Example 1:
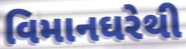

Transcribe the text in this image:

વિમાનઘરેથી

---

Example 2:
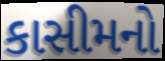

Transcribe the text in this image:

કાસીમનો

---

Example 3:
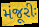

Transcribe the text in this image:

મંજૂરીઃ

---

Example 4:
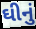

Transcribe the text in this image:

ઘીનું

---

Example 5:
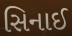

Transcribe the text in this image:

સિનાઈ